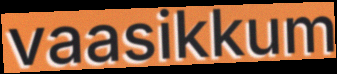
vaasikkum